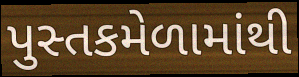
પુસ્તકમેળામાંથી